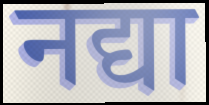
नद्या